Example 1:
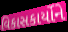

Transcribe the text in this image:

વિકાસકાર્યોને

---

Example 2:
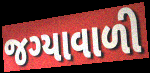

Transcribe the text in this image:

જગ્યાવાળી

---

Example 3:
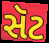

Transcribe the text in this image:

સૅટ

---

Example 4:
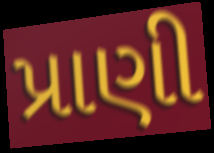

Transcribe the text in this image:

પ્રાણી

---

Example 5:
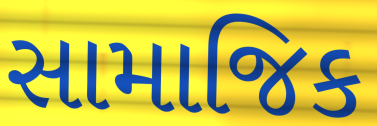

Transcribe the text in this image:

સામાજિક